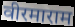
वीरमाराम